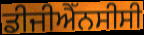
ਡੀਜੀਐੱਨਸੀਸੀ